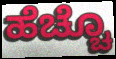
ಹೆಚ್ಚೊ